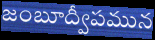
జంబూద్వీపమున